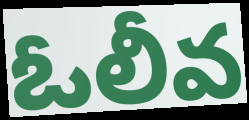
ఓలీవ